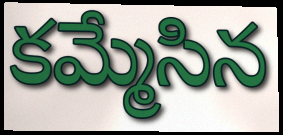
కమ్మేసిన